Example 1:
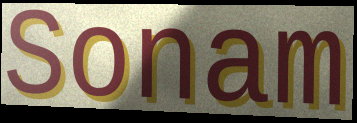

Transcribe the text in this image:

Sonam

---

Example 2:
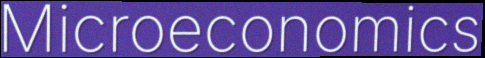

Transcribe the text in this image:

Microeconomics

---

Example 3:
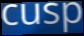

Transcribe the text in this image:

cusp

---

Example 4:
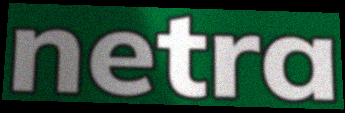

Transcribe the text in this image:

netra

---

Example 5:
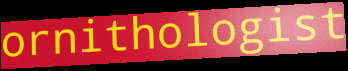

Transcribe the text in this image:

ornithologist